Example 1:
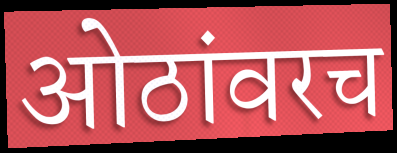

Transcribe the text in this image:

ओठांवरच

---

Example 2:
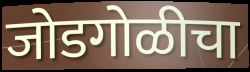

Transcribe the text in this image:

जोडगोळीचा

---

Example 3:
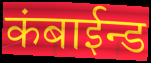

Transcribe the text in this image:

कंबाईन्ड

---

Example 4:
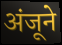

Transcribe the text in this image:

अंजूने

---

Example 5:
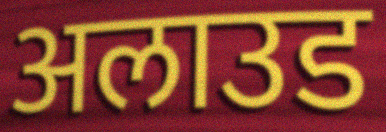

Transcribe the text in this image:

अलाउड